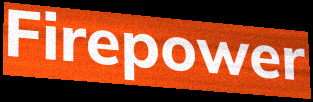
Firepower